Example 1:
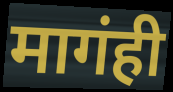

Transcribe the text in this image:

मागंही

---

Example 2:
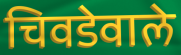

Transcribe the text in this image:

चिवडेवाले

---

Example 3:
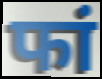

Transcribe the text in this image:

फां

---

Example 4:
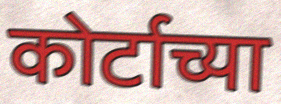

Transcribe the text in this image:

कोर्टाच्या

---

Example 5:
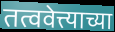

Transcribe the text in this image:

तत्ववेत्त्याच्या